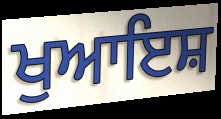
ਖੁਆਇਸ਼